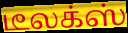
டீலக்ஸ்